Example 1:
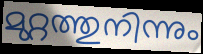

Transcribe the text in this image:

മുറ്റത്തുനിന്നും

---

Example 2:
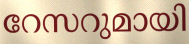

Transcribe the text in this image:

റേസറുമായി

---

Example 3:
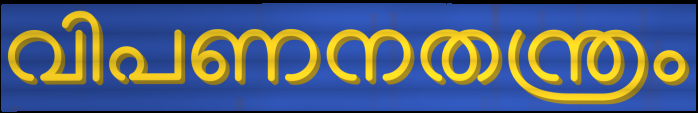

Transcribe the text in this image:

വിപണനതന്ത്രം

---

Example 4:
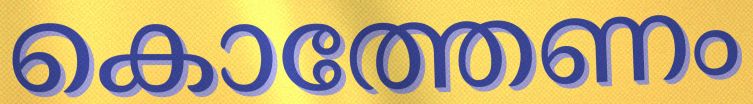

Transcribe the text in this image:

കൊത്തേണം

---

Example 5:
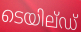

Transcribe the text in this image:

ടെയില്ഡ്